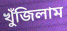
খুঁজিলাম